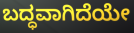
ಬದ್ಧವಾಗಿದೆಯೇ